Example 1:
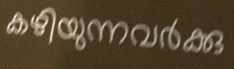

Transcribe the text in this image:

കഴിയുന്നവർക്കു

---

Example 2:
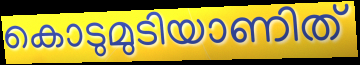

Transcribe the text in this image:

കൊടുമുടിയാണിത്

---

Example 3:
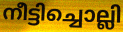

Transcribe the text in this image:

നീട്ടിച്ചൊല്ലി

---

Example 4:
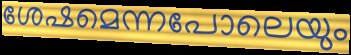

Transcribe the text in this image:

ശേഷമെന്നപോലെയും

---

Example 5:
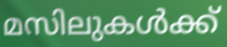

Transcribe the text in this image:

മസിലുകൾക്ക്